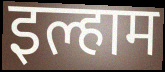
इल्हाम